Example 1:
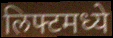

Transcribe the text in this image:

लिफ्टमध्ये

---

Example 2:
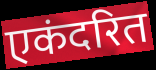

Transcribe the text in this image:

एकंदरित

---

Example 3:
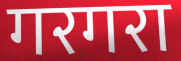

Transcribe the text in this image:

गरगरा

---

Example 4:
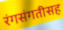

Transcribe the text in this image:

रंगसंगतीसह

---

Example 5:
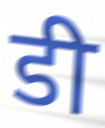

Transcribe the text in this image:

डी